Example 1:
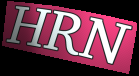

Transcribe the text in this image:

HRN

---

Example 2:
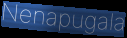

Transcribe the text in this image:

Nenapugala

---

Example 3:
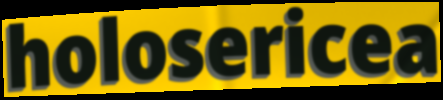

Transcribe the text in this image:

holosericea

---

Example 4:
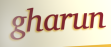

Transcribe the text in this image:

gharun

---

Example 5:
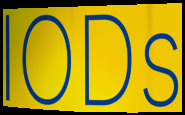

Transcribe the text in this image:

IODs